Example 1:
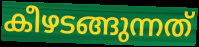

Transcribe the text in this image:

കീഴടങ്ങുന്നത്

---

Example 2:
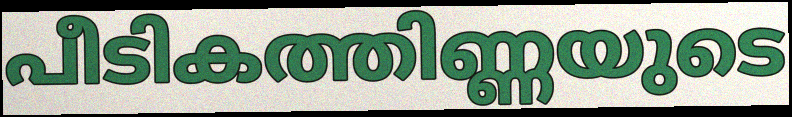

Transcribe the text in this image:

പീടികത്തിണ്ണയുടെ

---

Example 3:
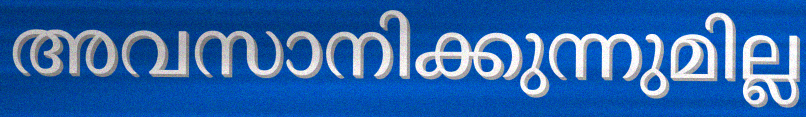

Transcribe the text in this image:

അവസാനിക്കുന്നുമില്ല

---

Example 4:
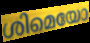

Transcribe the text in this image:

ശിമെയോ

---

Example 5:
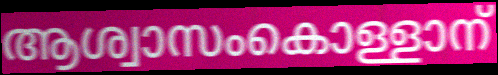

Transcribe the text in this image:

ആശ്വാസംകൊള്ളാന്